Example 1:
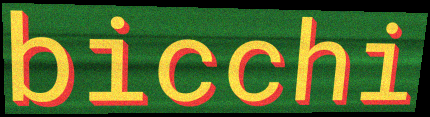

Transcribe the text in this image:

bicchi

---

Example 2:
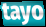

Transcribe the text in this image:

tayo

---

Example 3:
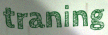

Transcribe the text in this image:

traning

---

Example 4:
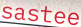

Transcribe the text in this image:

sastee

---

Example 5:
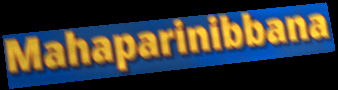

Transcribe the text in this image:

Mahaparinibbana